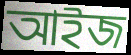
আইজ